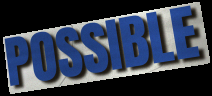
POSSIBLE